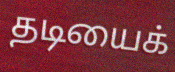
தடியைக்